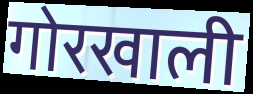
गोरखाली